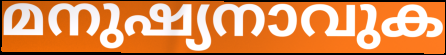
മനുഷ്യനാവുക